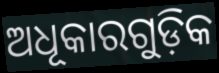
ଅଧୂକାରଗୁଡ଼ିକ